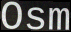
Osm